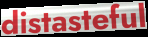
distasteful